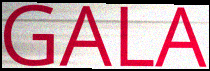
GALA